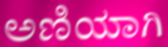
ಅಣಿಯಾಗಿ